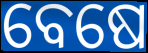
ବେଷେ